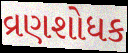
વ્રણશોધક